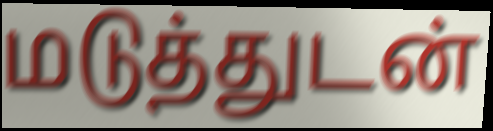
மடுத்துடன்